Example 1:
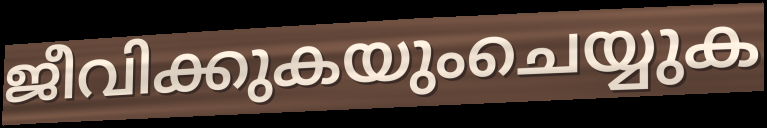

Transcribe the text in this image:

ജീവിക്കുകയുംചെയ്യുക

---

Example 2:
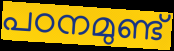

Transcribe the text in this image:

പഠനമുണ്ട്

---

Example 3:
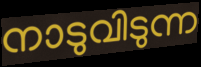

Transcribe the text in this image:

നാടുവിടുന്ന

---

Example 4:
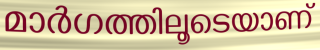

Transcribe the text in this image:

മാർഗത്തിലൂടെയാണ്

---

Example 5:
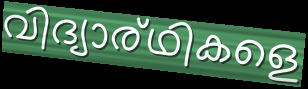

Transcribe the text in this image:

വിദ്യാര്ഥികളെ